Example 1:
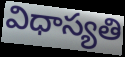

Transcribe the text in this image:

విధాస్యతి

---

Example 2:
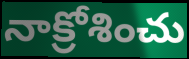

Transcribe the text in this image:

నాక్రోశించు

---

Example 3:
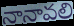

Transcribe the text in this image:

నానావలి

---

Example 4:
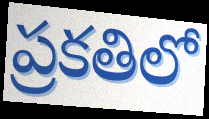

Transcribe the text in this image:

ప్రకతిలో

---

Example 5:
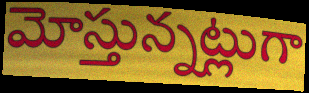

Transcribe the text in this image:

మోస్తున్నట్లుగా